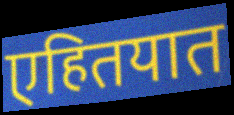
एहितयात